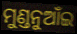
ମୁଣ୍ଡନୁଆଁଇ